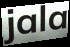
jala